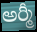
అర్మీ